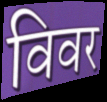
विवर